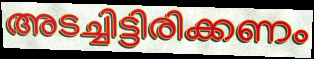
അടച്ചിട്ടിരിക്കണം